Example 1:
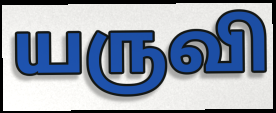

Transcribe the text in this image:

யருவி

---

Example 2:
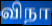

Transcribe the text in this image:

விநா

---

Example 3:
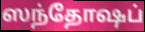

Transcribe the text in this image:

ஸந்தோஷப்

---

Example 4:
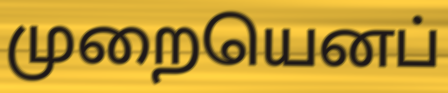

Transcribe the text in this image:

முறையெனப்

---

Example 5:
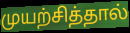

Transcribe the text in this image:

முயற்சித்தால்